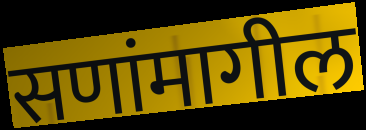
सणांमागील